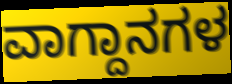
ವಾಗ್ದಾನಗಳ